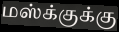
மஸ்க்குக்கு